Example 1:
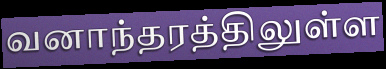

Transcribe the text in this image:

வனாந்தரத்திலுள்ள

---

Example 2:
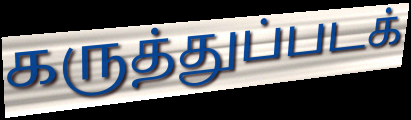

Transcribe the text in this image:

கருத்துப்படக்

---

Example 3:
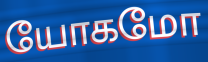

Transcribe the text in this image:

யோகமோ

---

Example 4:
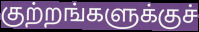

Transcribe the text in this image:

குற்றங்களுக்குச்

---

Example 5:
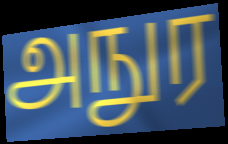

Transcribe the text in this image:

அநுர